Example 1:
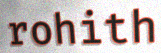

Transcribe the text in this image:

rohith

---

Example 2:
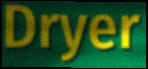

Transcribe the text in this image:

Dryer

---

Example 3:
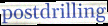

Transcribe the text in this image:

postdrilling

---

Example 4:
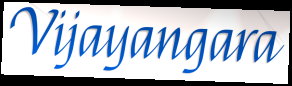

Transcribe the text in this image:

Vijayangara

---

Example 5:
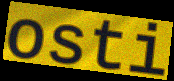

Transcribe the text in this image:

osti